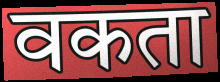
वकता